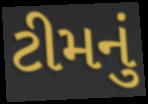
ટીમનું